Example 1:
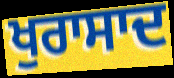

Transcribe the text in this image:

ਖੁਰਾਸਾਦ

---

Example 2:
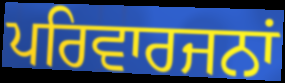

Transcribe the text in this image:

ਪਰਿਵਾਰਜਨਾਂ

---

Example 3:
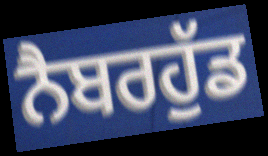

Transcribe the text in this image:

ਨੈਬਰਹੁੱਡ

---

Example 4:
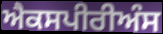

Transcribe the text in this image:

ਐਕਸਪੀਰੀਅੰਸ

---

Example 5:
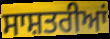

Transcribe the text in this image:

ਸਾਸ਼ਤਰੀਆਂ